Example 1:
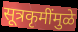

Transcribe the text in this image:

सूत्रकृमींमुळे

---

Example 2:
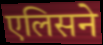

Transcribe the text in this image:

एलिसने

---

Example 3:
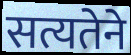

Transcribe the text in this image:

सत्यतेने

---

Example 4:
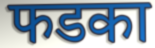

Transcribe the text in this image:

फडका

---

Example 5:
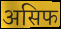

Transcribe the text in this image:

असिफ